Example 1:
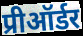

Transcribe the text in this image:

प्रीऑर्डर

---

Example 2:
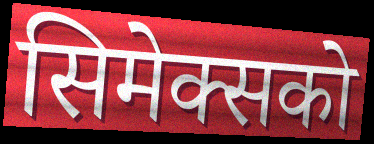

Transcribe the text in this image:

सिमेक्सको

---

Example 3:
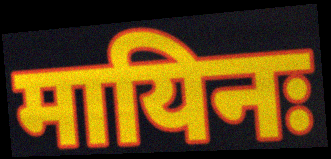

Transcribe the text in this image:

मायिनः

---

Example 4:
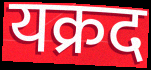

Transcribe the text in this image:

यक्रद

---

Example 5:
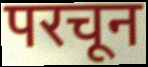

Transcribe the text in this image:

परचून